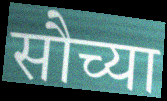
सौच्या